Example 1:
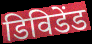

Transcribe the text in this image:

डिविडेंड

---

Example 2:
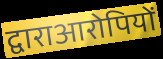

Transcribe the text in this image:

द्वाराआरोपियों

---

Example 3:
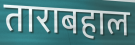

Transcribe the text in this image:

ताराबहाल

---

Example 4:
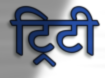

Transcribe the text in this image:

ट्रिटी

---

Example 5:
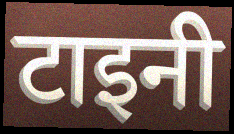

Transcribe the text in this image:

टाइनी